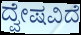
ದ್ವೇಷವಿದೆ